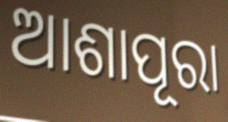
ଆଶାପୂରା